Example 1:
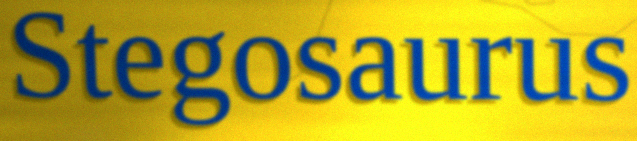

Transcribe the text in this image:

Stegosaurus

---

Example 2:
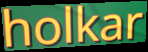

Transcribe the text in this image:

holkar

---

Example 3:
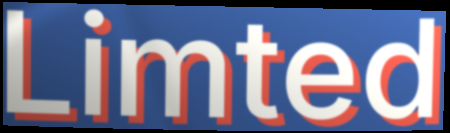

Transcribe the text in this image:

Limted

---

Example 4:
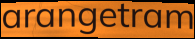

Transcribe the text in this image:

arangetram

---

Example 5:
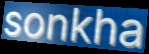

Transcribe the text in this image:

sonkha